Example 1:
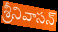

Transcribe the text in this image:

శ్రీనివాసన్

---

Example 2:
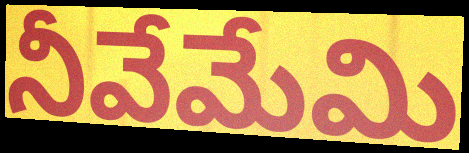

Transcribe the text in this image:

నీవేమేమి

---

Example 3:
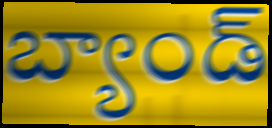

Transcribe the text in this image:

బ్యాండ్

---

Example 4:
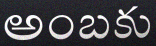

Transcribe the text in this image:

అంబకు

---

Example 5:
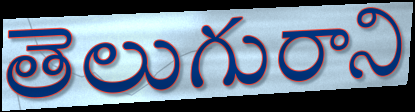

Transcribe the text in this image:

తెలుగురాని